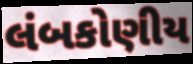
લંબકોણીય